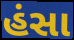
હંસા